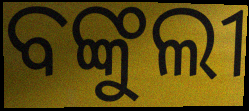
ବଙ୍କୁଲୀ